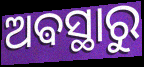
ଅଵସ୍ଥାରୁ